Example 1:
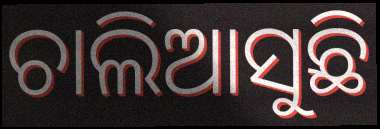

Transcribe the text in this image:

ଚାଲିଆସୁଛି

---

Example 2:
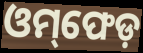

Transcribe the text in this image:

ଓମ୍‌ଫେଡ଼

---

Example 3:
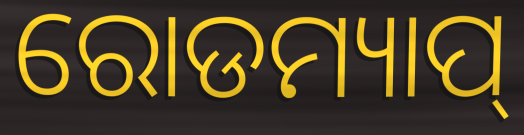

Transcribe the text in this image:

ରୋଡମ୍ୟାପ୍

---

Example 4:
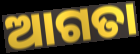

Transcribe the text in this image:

ଆଗତା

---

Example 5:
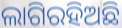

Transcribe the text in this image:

ଲାଗିରହିଅଛି